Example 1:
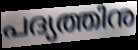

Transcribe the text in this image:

പദ്യത്തിനു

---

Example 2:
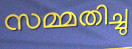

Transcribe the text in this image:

സമ്മതിച്ചു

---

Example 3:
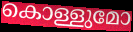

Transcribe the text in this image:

കൊള്ളുമോ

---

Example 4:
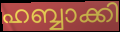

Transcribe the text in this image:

ഹബ്ബാക്കി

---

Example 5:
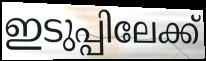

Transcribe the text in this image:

ഇടുപ്പിലേക്ക്